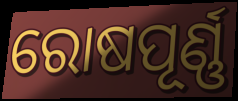
ରୋଷପୂର୍ଣ୍ଣ